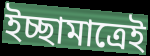
ইচ্ছামাত্রেই